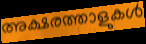
അക്ഷരത്താളുകൾ